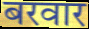
बरवार